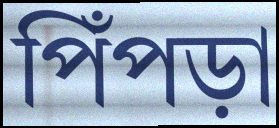
পিঁপড়া